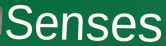
Senses